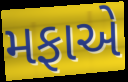
મફાએ